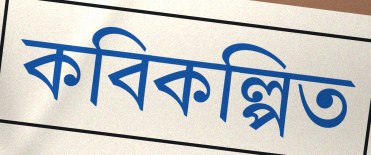
কবিকল্পিত